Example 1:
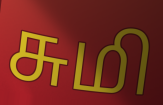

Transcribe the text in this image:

சுமி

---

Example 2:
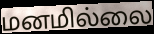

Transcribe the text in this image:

மனமில்லை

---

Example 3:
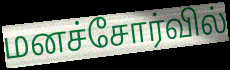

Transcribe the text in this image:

மனச்சோர்வில்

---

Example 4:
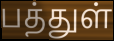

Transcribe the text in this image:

பத்துள்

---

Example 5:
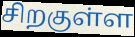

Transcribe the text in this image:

சிறகுள்ள